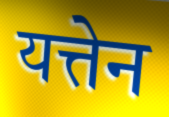
यत्तेन